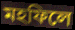
মহফিলে